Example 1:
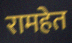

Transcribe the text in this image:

रामहेत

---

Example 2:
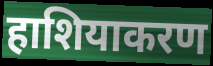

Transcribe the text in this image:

हाशियाकरण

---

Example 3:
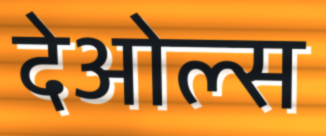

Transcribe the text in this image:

देओल्स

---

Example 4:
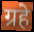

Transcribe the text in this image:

ग्रहे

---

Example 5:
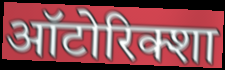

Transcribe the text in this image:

ऑटोरिक्शा